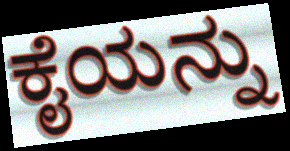
ಕೈಯನ್ನು